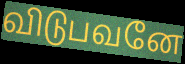
விடுபவனே